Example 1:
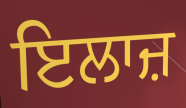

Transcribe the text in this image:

ਇਲਾਜ਼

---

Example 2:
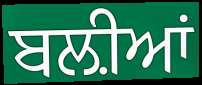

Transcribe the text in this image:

ਬਲ਼ੀਆਂ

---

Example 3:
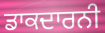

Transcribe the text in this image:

ਡਾਕਦਾਰਨੀ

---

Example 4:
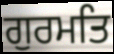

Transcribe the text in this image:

ਗੁਰਮਤਿ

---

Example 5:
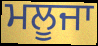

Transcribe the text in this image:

ਮਲੂਜਾ